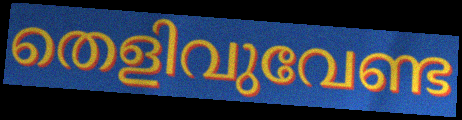
തെളിവുവേണ്ട